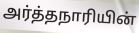
அர்த்தநாரியின்